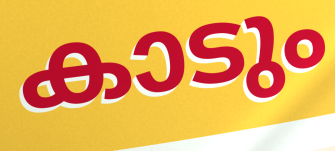
കാടും